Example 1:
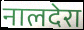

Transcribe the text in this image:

नालदेरा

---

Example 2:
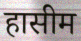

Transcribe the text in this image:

हासीम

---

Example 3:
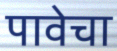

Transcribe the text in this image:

पावेचा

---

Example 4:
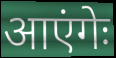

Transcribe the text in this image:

आएंगेः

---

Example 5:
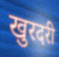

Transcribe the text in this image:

खुरदरी